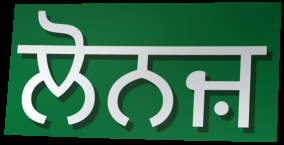
ਲੋਨਜ਼